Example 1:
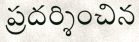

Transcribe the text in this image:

ప్రదర్శించిన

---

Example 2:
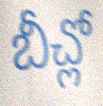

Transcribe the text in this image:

బీచ్లో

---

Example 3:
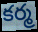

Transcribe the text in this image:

కర్మ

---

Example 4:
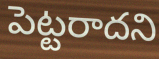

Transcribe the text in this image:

పెట్టరాదని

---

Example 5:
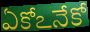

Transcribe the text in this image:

ఏకోఽనేకో